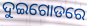
ଦୁଇଗୋଡରେ